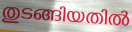
തുടങ്ങിയതിൽ